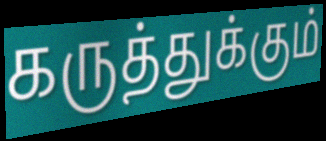
கருத்துக்கும்